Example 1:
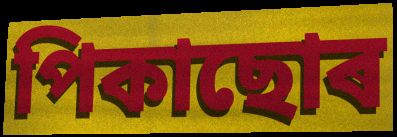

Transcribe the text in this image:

পিকাছোৰ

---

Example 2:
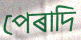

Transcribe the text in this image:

পেৰাদি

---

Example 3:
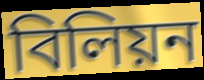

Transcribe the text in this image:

বিলিয়ন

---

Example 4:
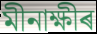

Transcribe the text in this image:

মীনাক্ষীৰ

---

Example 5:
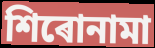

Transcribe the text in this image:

শিৰোনামা